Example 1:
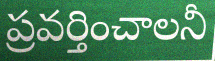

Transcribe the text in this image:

ప్రవర్తించాలనీ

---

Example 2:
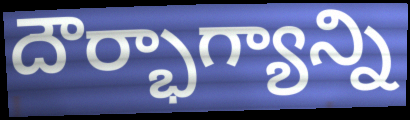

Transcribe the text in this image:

దౌర్భాగ్యాన్ని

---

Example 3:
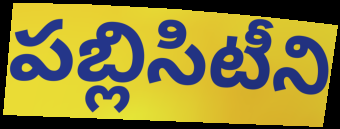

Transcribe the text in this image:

పబ్లిసిటీని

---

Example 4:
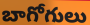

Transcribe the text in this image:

బాగోగులు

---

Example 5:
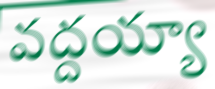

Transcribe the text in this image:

వద్దయ్యా